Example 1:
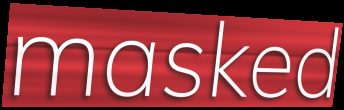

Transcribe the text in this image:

masked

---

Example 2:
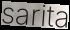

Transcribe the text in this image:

sarita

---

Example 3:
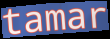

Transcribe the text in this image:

tamar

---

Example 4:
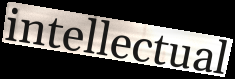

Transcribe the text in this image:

intellectual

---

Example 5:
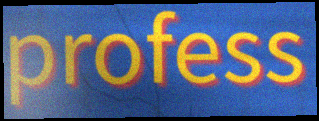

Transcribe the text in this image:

profess